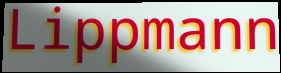
Lippmann